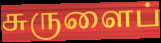
சுருளைப்